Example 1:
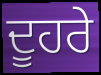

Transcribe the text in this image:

ਦੂਹਰੇ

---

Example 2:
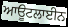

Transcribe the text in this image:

ਆਊਟਲਾਈਨ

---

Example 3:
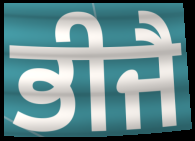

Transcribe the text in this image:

ਭੀਜੈ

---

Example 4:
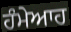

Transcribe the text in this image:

ਹੰਮੇਆਹ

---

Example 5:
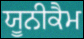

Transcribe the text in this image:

ਯੂਨੀਕੈਮ